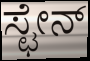
ಸ್ಟೇನ್